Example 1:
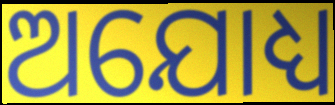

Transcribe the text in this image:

ଅଯୋଧ୍ୟ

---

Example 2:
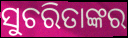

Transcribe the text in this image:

ସୁଚରିତାଙ୍କର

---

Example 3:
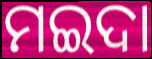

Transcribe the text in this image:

ମଇଦା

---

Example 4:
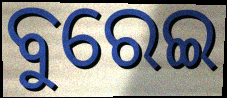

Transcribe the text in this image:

ବୁରେଇ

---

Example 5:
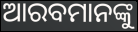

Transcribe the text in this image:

ଆରବମାନଙ୍କୁ